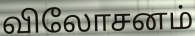
விலோசனம்